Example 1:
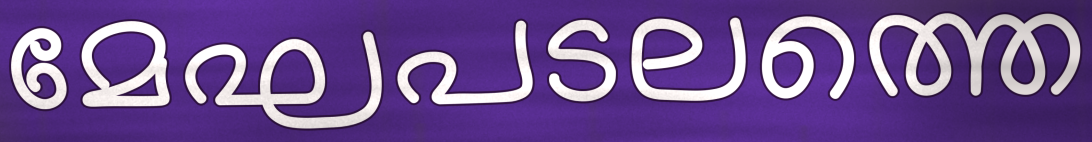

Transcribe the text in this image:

മേഘപടലത്തെ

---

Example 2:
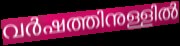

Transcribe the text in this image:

വർഷത്തിനുള്ളിൽ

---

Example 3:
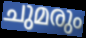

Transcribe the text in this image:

ചുമരും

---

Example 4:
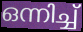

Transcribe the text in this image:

ഒന്നിച്ച്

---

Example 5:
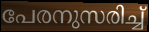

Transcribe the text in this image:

പേരനുസരിച്ച്